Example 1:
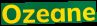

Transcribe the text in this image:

Ozeane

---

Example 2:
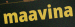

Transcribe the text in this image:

maavina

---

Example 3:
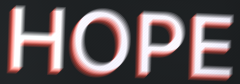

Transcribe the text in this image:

HOPE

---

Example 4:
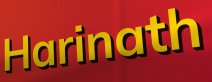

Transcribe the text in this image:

Harinath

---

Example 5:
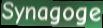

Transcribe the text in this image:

Synagoge